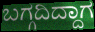
ಬಗ್ಗದಿದ್ದಾಗ